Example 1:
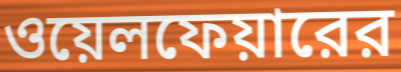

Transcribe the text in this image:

ওয়েলফেয়ারের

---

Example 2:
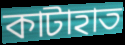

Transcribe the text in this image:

কাটাহাত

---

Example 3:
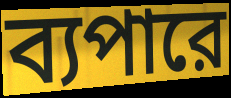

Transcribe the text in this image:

ব্যপারে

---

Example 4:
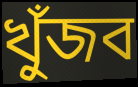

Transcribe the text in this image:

খুঁজব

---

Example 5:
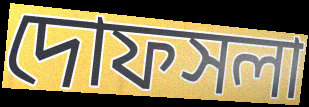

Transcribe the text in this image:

দোফসলা